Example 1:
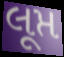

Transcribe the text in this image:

લૂપ્ત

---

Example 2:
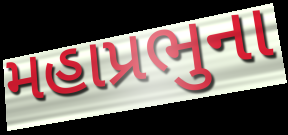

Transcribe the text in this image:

મહાપ્રભુના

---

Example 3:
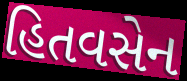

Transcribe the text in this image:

હિતવસેન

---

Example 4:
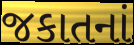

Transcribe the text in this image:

જકાતનાં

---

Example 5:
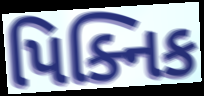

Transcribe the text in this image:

પિક્નિક